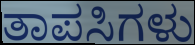
ತಾಪಸಿಗಳು